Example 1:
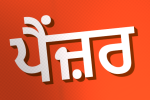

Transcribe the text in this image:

ਪੈਂਜ਼ਰ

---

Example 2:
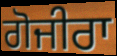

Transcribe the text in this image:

ਗੋਜੀਰਾ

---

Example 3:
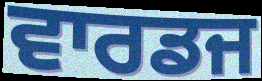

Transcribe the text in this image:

ਵਾਰਡਜ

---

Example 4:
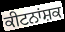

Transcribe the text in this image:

ਕੀਟਨਾਂਸ਼ਕ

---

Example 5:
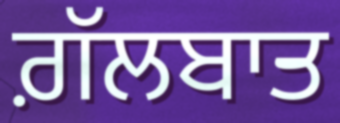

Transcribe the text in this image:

ਗ਼ੱਲਬਾਤ